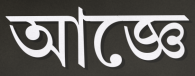
আজ্ঞে